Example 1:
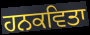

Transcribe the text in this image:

ਹਨਕਵਿਤਾ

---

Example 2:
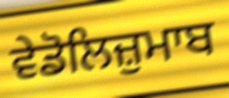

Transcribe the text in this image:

ਵੇਡੋਲਿਜ਼ੁਮਾਬ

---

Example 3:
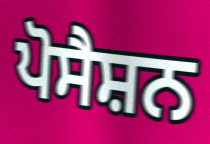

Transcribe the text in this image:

ਪੋਸੈਸ਼ਨ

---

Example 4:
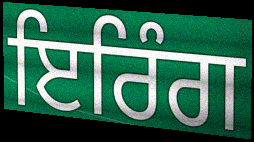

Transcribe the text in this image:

ਇਰਿੰਗ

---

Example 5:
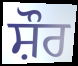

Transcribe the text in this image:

ਸ਼ੌਰ